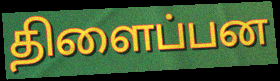
திளைப்பன